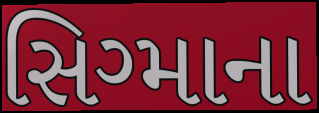
સિગ્માના